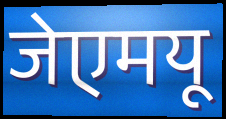
जेएमयू